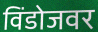
विंडोजवर